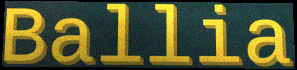
Ballia